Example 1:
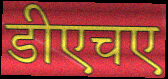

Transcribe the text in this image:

डीएचए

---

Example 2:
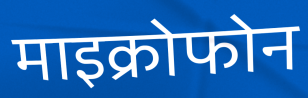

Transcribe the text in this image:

माइक्रोफोन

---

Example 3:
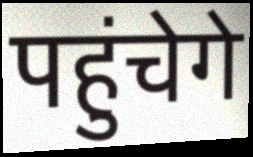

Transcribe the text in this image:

पहुंचेगे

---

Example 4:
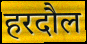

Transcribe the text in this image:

हरदौल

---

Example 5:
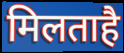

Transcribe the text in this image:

मिलताहै